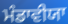
ਮੰਡਾਵੀਯਾ